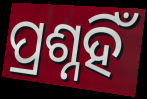
ପ୍ରଶ୍ନହିଁ